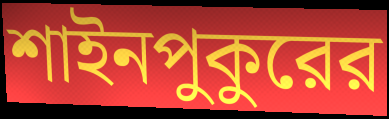
শাইনপুকুরের